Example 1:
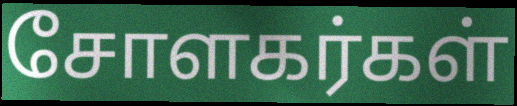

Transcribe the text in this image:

சோளகர்கள்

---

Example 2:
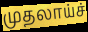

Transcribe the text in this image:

முதலாய்ச்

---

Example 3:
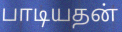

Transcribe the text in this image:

பாடியதன்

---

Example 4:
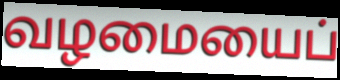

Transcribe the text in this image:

வழமையைப்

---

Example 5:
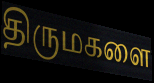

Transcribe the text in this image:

திருமகளை